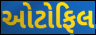
ઓટોફિલ